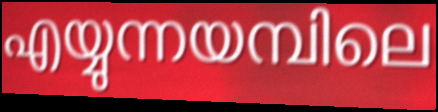
എയ്യുന്നയമ്പിലെ